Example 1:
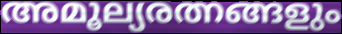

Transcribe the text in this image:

അമൂല്യരത്നങ്ങളും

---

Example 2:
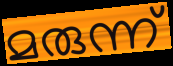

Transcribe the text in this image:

മരുന്ന്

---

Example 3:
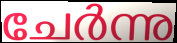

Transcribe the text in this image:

ചേർന്നു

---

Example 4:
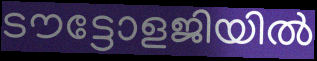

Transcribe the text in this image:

ടൗട്ടോളജിയിൽ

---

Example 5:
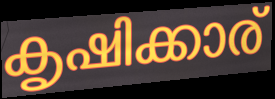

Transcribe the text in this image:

കൃഷിക്കാര്